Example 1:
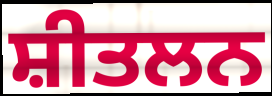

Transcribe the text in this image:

ਸ਼ੀਤਲਨ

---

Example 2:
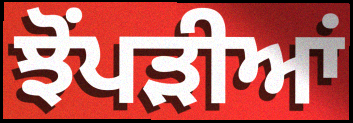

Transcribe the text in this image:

ਝੋਂਪੜੀਆਂ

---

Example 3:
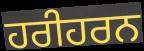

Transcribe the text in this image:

ਹਰੀਹਰਨ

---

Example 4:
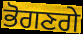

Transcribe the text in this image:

ਭੋਗਣਗੇ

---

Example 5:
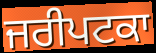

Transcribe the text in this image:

ਜਰੀਪਟਕਾ